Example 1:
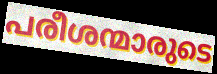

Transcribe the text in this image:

പരീശന്മാരുടെ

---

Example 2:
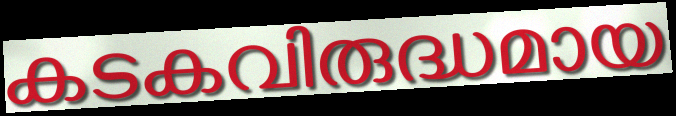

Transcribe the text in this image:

കടകവിരുദ്ധമായ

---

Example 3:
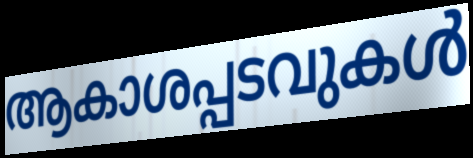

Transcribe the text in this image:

ആകാശപ്പടവുകൾ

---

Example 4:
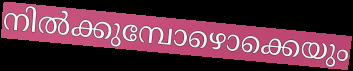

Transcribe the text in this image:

നിൽക്കുമ്പോഴൊക്കെയും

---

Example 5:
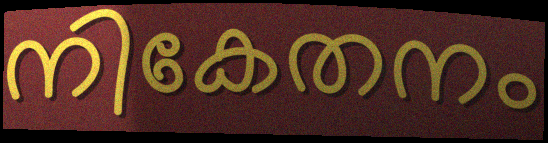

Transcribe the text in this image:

നികേതനം